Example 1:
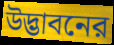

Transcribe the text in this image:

উদ্ভাবনের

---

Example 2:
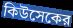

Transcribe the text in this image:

কিউসেকের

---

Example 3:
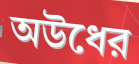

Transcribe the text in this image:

অউধের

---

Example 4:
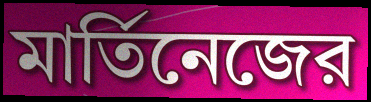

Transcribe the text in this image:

মার্তিনেজের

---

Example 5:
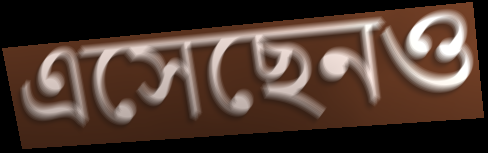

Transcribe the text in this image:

এসেছেনও